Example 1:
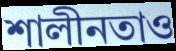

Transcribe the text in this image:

শালীনতাও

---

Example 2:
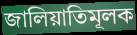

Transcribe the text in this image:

জালিয়াতিমূলক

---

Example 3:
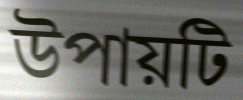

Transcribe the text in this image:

উপায়টি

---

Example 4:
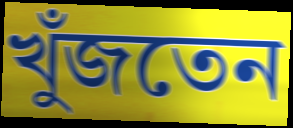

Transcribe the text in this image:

খুঁজতেন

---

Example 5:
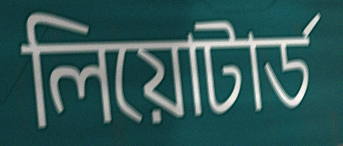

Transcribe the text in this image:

লিয়োটার্ড